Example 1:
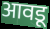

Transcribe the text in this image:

आवडू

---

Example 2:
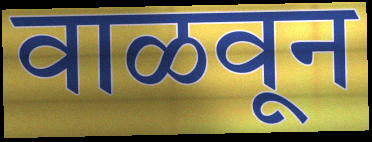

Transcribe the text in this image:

वाळवून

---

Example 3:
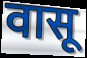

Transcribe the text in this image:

वासू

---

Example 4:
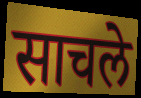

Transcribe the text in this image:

साचले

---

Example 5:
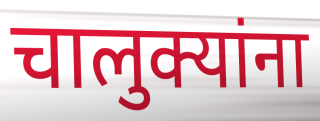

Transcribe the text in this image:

चालुक्यांना